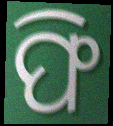
ଫି